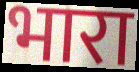
भारा